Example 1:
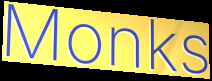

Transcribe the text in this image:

Monks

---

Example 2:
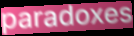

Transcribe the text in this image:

paradoxes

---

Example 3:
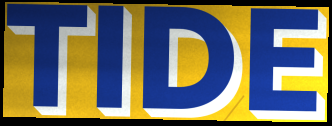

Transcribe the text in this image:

TIDE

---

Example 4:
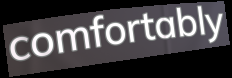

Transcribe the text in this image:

comfortably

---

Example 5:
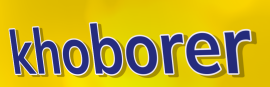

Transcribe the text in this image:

khoborer